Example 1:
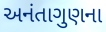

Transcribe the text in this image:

અનંતાગુણના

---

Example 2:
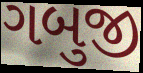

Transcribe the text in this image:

ગબુજી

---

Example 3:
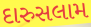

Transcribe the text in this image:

દારુસલામ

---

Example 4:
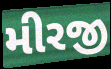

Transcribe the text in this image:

મીરજી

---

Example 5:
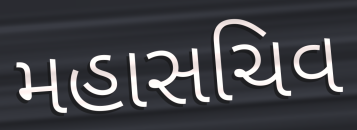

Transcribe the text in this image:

મહાસચિવ